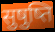
सुषुष्ति